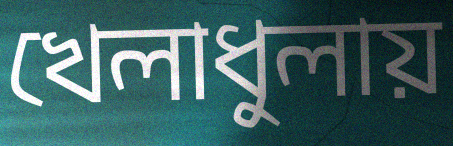
খেলাধুলায়